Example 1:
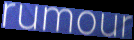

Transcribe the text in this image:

rumour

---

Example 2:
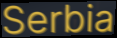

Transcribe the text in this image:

Serbia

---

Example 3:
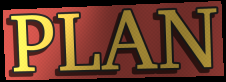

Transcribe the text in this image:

PLAN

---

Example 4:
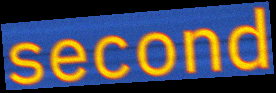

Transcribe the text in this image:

second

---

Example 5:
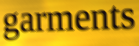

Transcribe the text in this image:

garments